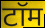
टॉम